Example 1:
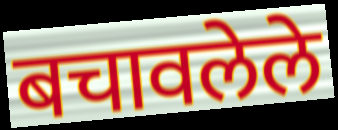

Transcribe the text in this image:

बचावलेले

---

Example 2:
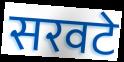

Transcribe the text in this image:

सरवटे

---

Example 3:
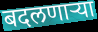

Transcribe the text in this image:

बदलणार्‍या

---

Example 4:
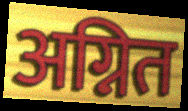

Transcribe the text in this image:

अग्नित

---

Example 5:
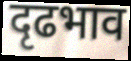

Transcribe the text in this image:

दृढभाव